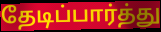
தேடிப்பார்த்து